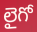
లైగో